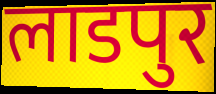
लाडपुर